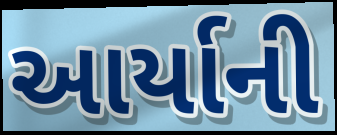
આર્યાની